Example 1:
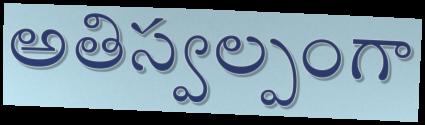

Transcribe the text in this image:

అతిస్వల్పంగా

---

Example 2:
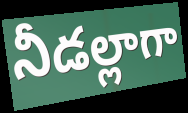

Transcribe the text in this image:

నీడల్లాగా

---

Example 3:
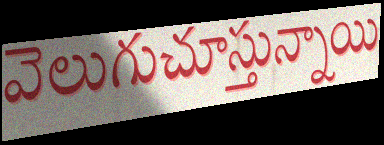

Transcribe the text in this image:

వెలుగుచూస్తున్నాయి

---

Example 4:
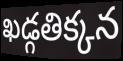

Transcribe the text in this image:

ఖడ్గతిక్కన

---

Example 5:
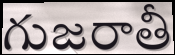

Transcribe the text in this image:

గుజరాతీ